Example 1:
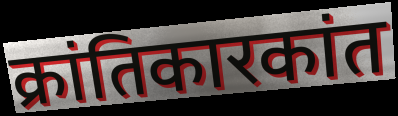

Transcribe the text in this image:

क्रांतिकारकांत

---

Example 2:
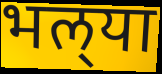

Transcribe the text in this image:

भल्या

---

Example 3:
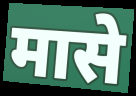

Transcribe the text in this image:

मासे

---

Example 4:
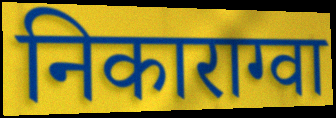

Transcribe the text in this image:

निकाराग्वा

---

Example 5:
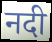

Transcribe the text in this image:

नदी